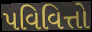
પવિવિત્તો